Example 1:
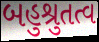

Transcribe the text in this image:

બહુશ્રુતત્વ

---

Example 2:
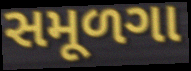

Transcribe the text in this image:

સમૂળગા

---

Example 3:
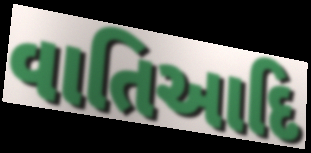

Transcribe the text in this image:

વાતિઆદિ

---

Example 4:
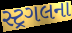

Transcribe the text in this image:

સ્ટ્રગલના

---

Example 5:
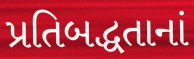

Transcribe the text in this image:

પ્રતિબદ્ધતાનાં